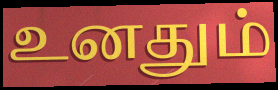
உனதும்